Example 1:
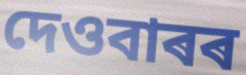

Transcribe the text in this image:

দেওবাৰৰ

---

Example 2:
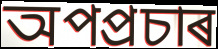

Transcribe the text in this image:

অপপ্ৰচাৰ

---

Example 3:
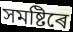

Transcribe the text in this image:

সমষ্টিৰে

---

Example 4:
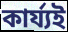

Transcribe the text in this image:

কাৰ্য্যই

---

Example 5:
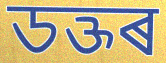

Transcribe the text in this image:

ডক্তৰ